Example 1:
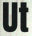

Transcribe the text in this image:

Ut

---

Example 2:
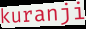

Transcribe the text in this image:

kuranji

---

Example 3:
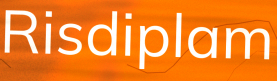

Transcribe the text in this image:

Risdiplam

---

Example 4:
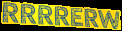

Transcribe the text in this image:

RRRRERW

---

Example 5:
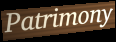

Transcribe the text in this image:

Patrimony